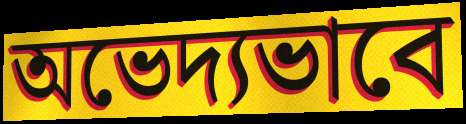
অভেদ্যভাবে